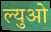
ल्युओ